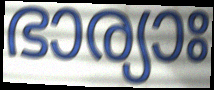
ഭാര്യാഃ